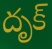
దృక్